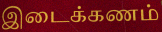
இடைக்கணம்